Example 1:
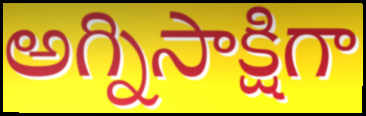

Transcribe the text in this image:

అగ్నిసాక్షిగా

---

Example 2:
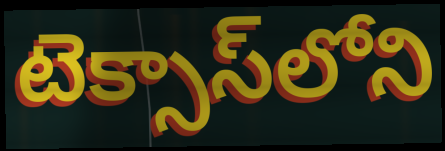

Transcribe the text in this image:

టెక్సాస్‌లోని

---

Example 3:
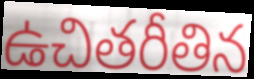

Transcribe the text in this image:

ఉచితరీతిన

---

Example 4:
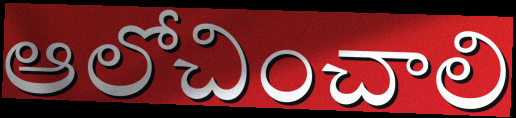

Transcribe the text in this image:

ఆలోచించాలి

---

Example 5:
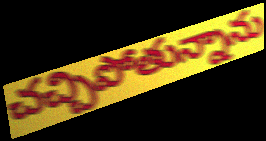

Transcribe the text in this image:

చచ్చిపోతున్నాను